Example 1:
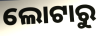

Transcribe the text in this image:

ଲୋଟାରୁ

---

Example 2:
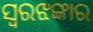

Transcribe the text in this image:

ସ୍ୱରଝଙ୍କାର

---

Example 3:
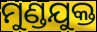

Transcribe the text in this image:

ମୁଣ୍ଡଯୁକ୍ତ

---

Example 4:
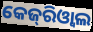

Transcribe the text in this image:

କେଜ୍‌ରିଓ୍ବାଲ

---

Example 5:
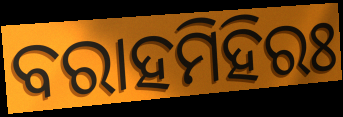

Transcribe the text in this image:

ବରାହମିହିରଃ